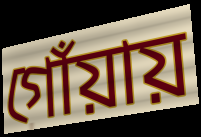
গোঁয়ায়